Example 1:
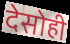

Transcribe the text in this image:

देसोही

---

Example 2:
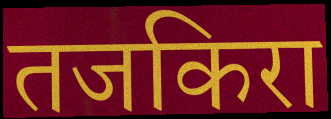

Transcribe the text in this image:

तजकिरा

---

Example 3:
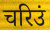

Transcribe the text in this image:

चरिउं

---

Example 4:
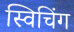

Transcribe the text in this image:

स्विचिंग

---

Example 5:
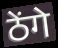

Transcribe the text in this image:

ठेंगे